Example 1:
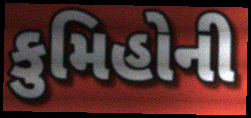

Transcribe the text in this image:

કુમિહોની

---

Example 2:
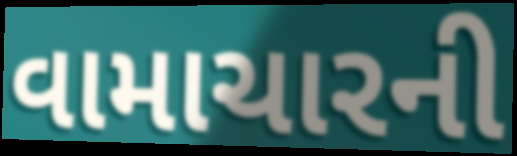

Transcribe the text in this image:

વામાચારની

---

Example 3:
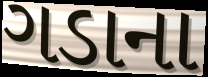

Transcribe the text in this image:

ગડાના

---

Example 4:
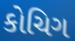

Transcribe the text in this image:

કોચિગ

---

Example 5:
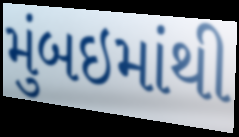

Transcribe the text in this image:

મુંબઇમાંથી